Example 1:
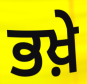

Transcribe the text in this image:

ਭਖ਼ੇ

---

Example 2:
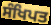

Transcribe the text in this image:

ਸੰਖਿਪਤ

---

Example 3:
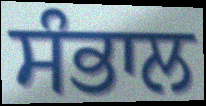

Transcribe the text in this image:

ਸੰਭਾਲ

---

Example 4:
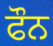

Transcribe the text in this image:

ਫੌਨ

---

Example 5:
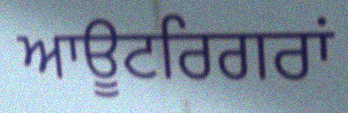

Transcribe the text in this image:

ਆਊਟਰਿਗਰਾਂ